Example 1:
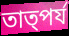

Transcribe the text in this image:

তাত্পর্য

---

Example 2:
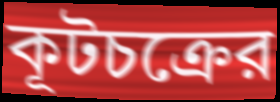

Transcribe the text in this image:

কূটচক্রের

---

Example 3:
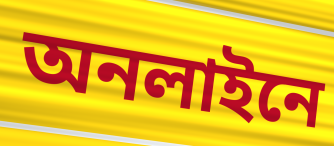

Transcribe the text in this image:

অনলাইনে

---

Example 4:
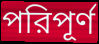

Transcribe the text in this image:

পরিপূর্ণ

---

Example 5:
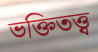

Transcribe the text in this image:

ভক্তিতত্ত্ব